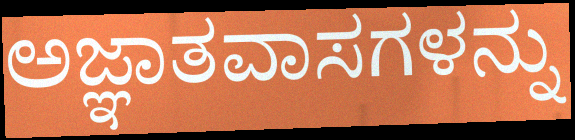
ಅಜ್ಞಾತವಾಸಗಳನ್ನು